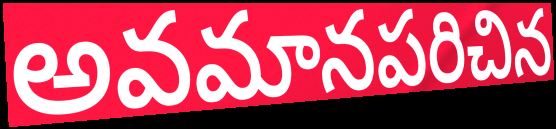
అవమానపరిచిన